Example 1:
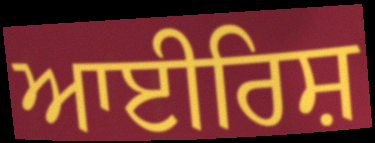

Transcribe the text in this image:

ਆਈਰਿਸ਼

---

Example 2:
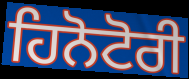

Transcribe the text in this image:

ਹਿਨੋਟੋਰੀ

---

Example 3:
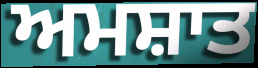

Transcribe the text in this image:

ਅਮਸ਼ਾਤ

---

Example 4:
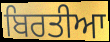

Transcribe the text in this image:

ਬਿਰਤੀਆ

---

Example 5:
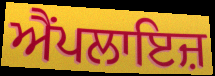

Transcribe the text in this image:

ਐਂਪਲਾਇਜ਼